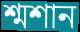
শ্মশান